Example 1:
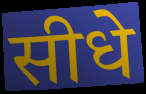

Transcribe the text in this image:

सीधे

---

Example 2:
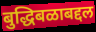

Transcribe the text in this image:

बुद्धिबळाबद्दल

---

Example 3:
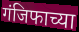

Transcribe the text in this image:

गंजिफाच्या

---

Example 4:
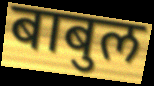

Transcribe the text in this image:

बाबुल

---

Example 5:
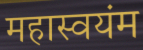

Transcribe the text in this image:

महास्वयंम